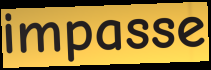
impasse